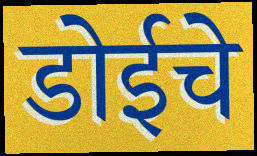
डोईचे